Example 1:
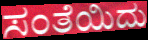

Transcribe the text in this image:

ಸಂತೆಯಿದು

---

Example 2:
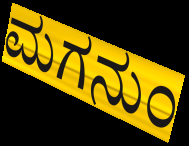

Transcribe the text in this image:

ಮಗನುಂ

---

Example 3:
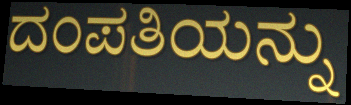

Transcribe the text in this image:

ದಂಪತಿಯನ್ನು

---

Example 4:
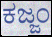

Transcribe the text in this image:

ಕಜ್ಜಂ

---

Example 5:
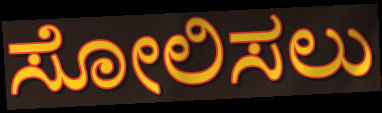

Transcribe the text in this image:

ಸೋಲಿಸಲು